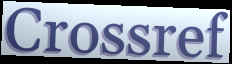
Crossref